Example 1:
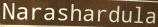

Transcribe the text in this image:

Narashardula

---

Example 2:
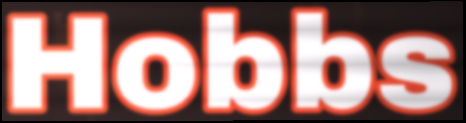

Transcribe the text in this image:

Hobbs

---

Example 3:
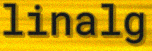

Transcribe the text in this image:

linalg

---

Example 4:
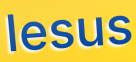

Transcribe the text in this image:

Iesus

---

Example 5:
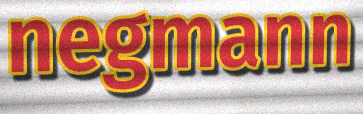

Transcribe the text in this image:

negmann